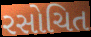
રસોચિત